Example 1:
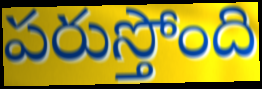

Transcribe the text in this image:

పరుస్తోంది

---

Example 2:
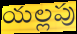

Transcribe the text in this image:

యల్లపు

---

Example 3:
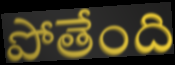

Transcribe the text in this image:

పోతేంది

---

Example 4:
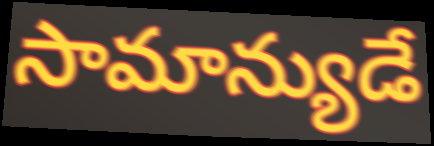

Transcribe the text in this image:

సామాన్యుడే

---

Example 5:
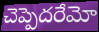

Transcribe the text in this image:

చెప్పెదరేమో